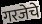
गरजेचे